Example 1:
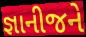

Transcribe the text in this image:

જ્ઞાનીજને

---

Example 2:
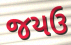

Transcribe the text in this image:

જયઉ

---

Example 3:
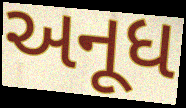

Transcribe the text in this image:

અનૂધ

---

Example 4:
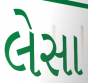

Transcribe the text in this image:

લેસા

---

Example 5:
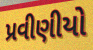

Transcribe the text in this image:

પ્રવીણીયો